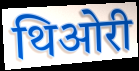
थिओरी